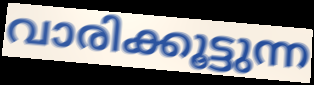
വാരിക്കൂട്ടുന്ന